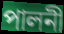
পালনী